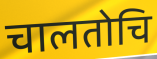
चालतोचि